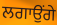
ਲਗਾਉਂਗੇ